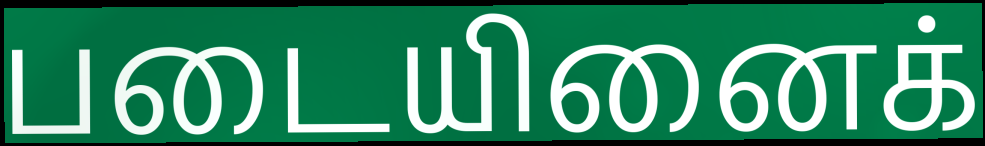
படையினைக்